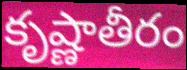
కృష్ణాతీరం